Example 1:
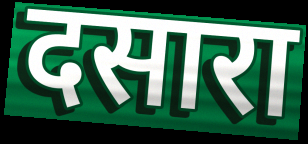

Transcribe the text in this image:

दसारा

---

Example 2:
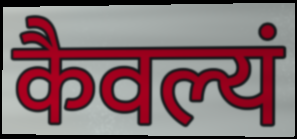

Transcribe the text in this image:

कैवल्यं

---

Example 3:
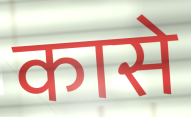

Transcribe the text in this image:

कासे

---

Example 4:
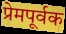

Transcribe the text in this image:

प्रेमपूर्वक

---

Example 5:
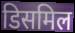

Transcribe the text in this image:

डिसमिल